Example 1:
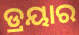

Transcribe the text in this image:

ଡ୍ରୟାର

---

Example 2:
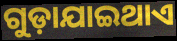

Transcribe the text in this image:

ଗୁଡ଼ାଯାଇଥାଏ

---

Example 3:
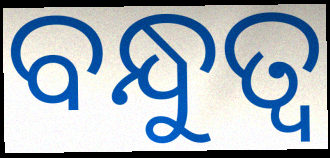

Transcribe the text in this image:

ବନ୍ଧୁତ୍ୱ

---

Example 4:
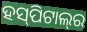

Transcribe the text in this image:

ହସ୍‍ପିଟାଲ୍‍ର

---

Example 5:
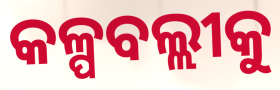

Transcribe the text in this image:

କଳ୍ପବଲ୍ଲୀକୁ